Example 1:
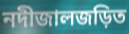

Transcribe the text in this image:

নদীজালজড়িত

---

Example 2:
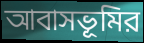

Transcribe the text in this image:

আবাসভূমির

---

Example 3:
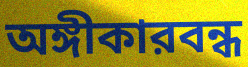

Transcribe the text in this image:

অঙ্গীকারবন্ধ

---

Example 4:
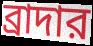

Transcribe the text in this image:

ব্রাদার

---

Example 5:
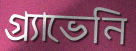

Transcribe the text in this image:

গ্র্যাভেনি